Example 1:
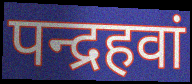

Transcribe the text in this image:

पन्द्रहवां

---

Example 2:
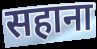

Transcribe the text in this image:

सहाना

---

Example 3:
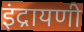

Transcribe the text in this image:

इंद्रायणी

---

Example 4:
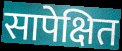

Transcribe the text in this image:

सापेक्षित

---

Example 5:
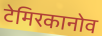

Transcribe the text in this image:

टेमिरकानोव